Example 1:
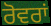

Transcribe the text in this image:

ਰੋਵਰਾਂ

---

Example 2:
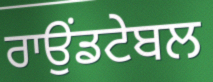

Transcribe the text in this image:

ਰਾਉਂਡਟੇਬਲ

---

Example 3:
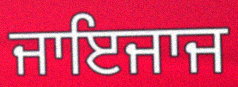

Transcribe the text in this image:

ਜਾਇਜਾਜ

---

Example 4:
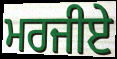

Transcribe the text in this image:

ਮਰਜੀਏ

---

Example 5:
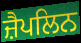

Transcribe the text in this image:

ਜ਼ੈਪਲਿਨ